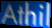
Athil